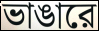
ভাঙারে